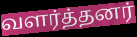
வளர்த்தனர்